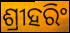
ଶ୍ରୀହରିଂ